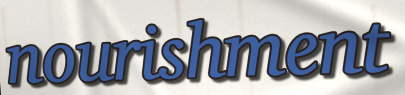
nourishment